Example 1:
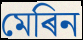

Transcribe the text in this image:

মেৰিন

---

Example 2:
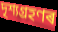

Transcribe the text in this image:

দৃশ্যগ্ৰহণৰ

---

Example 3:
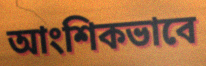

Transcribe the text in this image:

আংশিকভাবে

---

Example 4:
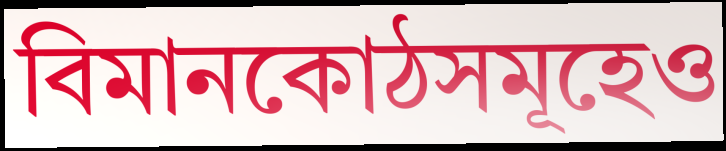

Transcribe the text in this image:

বিমানকোঠসমূহেও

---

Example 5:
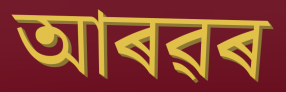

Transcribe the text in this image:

আৰৱৰ